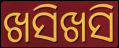
ଖସିଖସି